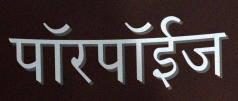
पॉरपॉईज